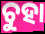
ଚୁହା